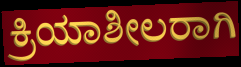
ಕ್ರಿಯಾಶೀಲರಾಗಿ